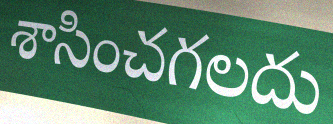
శాసించగలదు